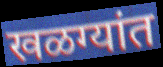
खळग्यांत